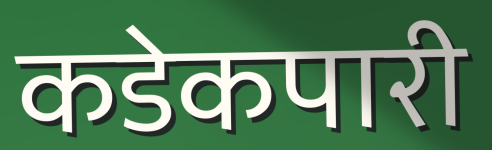
कडेकपारी